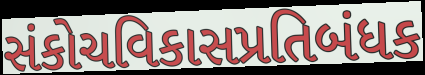
સંકોચવિકાસપ્રતિબંધક